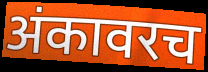
अंकावरच